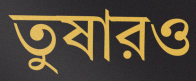
তুষারও